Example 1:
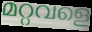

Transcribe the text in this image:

മറ്റവളെ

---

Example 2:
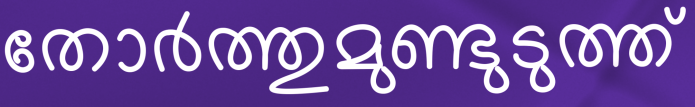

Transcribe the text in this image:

തോർത്തുമുണ്ടുടുത്ത്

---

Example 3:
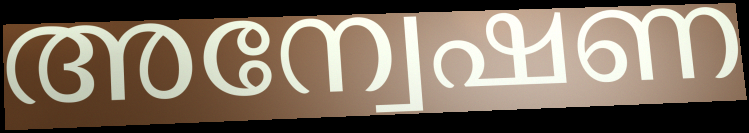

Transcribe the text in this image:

അന്വേഷണ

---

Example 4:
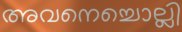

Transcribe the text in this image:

അവനെച്ചൊല്ലി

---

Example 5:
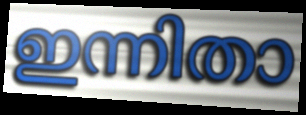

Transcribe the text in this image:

ഇന്നിതാ